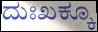
ದುಃಖಕ್ಕೂ